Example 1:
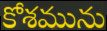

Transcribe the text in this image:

కోశమును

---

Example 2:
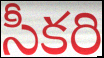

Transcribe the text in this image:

సీకరి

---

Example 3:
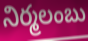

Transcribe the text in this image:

నిర్మలంబు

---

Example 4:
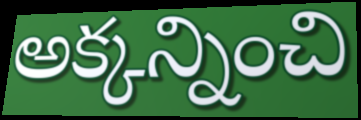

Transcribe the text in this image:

అక్కన్నించి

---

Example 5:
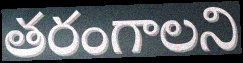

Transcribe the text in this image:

తరంగాలని